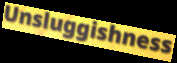
Unsluggishness